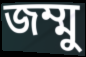
জম্মু